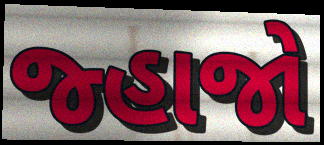
જ્હાજો